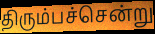
திரும்பச்சென்று